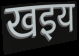
खइय